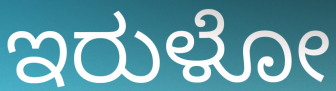
ಇರುಳೋ